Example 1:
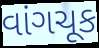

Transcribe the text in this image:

વાંગચૂક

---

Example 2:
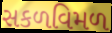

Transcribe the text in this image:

સકળવિમળ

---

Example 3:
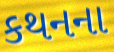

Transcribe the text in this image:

કથનના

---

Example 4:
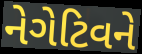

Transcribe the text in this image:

નેગેટિવને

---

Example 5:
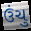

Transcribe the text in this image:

ઉંચુ